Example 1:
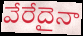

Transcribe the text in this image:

వేరేదైనా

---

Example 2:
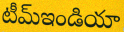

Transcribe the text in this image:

టీమ్ఇండియా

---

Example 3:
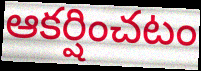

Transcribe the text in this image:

ఆకర్షించటం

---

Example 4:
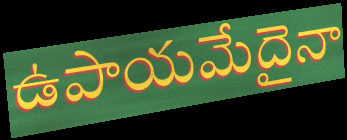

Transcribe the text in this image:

ఉపాయమేదైనా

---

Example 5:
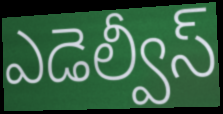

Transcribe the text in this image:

ఎడెల్వీస్